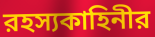
রহস্যকাহিনীর